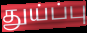
துய்ப்பு